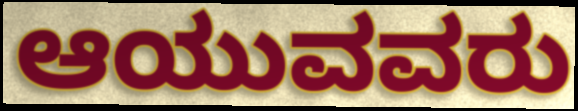
ಆಯುವವರು